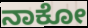
ನಾಕೋ